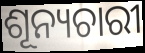
ଶୂନ୍ୟଚାରୀ